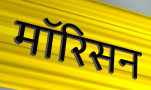
मॉरिसन